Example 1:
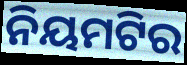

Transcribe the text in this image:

ନିୟମଟିର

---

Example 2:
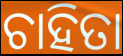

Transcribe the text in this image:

ଚାହିତା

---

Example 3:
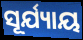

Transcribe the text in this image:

ସୂର୍ଯ୍ୟାୟ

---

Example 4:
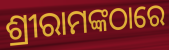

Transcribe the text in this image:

ଶ୍ରୀରାମଙ୍କଠାରେ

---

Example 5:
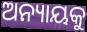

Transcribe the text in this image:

ଅନ୍ୟାୟକୁ